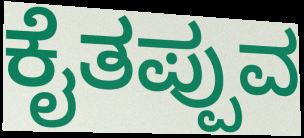
ಕೈತಪ್ಪುವ